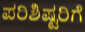
ಪರಿಶಿಷ್ಟರಿಗೆ